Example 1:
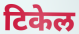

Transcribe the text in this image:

टिकेल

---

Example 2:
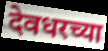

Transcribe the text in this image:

देवधरच्या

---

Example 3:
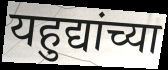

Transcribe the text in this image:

यहुद्यांच्या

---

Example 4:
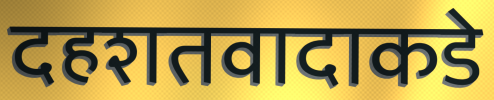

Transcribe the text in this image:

दहशतवादाकडे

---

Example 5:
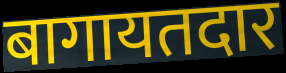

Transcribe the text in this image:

बागायतदार